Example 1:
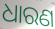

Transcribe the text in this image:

ଧାରଣ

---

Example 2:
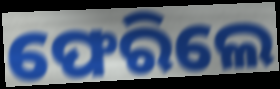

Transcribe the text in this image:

ଫେରିଲେ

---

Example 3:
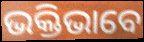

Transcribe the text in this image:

ଭକ୍ତିଭାବେ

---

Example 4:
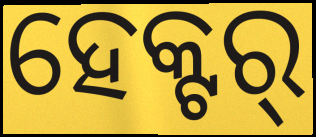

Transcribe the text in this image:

ହେକ୍ଟର୍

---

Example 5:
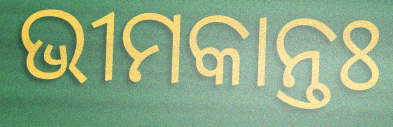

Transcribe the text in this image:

ଭୀମକାନ୍ତଃ